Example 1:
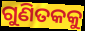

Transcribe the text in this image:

ଗୁଣିତକକୁ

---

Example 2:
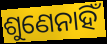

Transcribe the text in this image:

ଶୁଣେନାହିଁ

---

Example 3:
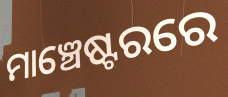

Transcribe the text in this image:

ମାଞ୍ଚେଷ୍ଟରରେ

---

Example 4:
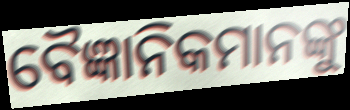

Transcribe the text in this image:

ବୈଜ୍ଞାନିକମାନଙ୍କୁ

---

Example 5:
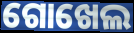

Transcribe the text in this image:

ଗୋଖେଲ